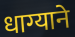
धाग्याने